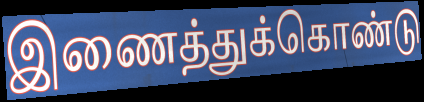
இணைத்துக்கொண்டு